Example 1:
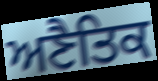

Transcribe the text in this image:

ਅਣੈਤਿਕ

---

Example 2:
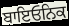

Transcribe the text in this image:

ਬਾਇਓਨਿਕ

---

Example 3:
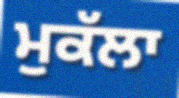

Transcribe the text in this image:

ਮੁਕੱਲਾ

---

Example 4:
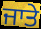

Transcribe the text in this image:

ਜਾਤੇ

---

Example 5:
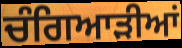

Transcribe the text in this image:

ਚੰਗਿਆੜੀਆਂ